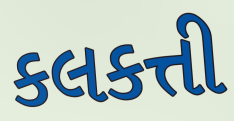
કલકત્તી